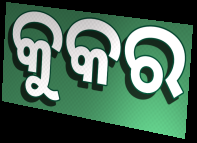
କୁକର